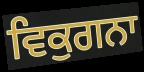
ਵਿਕੁਗਨਾ